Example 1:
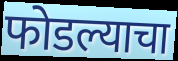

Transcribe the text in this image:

फोडल्याचा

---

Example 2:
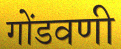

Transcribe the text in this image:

गोंडवणी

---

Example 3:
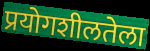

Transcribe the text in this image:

प्रयोगशीलतेला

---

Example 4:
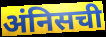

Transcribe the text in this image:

अंनिसची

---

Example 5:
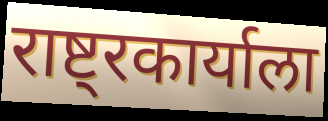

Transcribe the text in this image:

राष्ट्रकार्याला